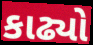
કાઢ્યો